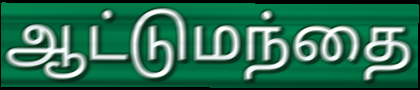
ஆட்டுமந்தை